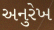
અનુરેખ